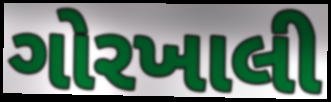
ગોરખાલી